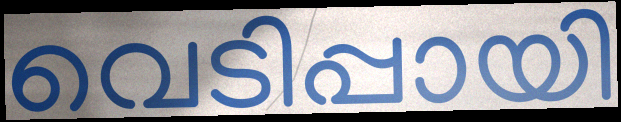
വെടിപ്പായി